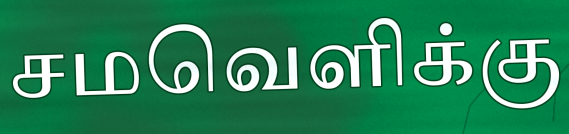
சமவெளிக்கு